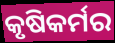
କୃଷିକର୍ମର